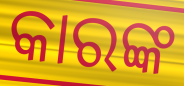
କାରଙ୍କ